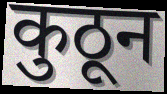
कुठून